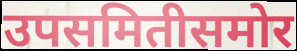
उपसमितीसमोर